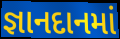
જ્ઞાનદાનમાં